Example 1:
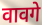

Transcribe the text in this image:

वावगे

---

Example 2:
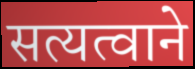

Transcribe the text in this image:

सत्यत्वाने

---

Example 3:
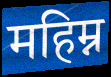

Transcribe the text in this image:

महिम्न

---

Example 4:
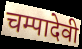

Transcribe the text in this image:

चम्पादेवी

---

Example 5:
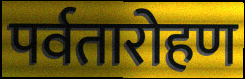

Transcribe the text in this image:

पर्वतारोहण